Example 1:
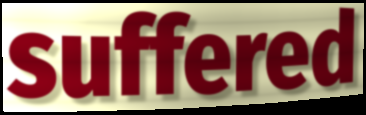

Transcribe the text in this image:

suffered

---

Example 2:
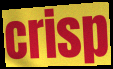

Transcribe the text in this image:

crisp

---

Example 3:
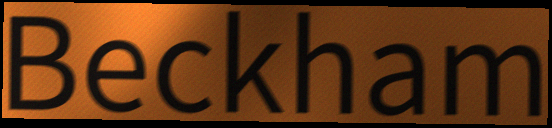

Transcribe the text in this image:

Beckham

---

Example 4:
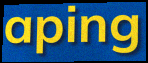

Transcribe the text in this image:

aping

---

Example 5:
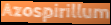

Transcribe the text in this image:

Azospirillum